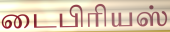
டைபிரியஸ்